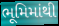
ભૂમિમાંથી